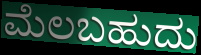
ಮೆಲಬಹುದು